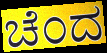
ಚೆಂದ